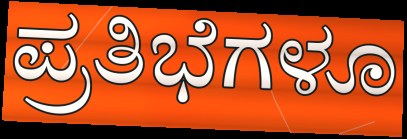
ಪ್ರತಿಭೆಗಳೂ